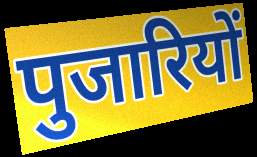
पुजारियों